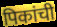
पिकांची